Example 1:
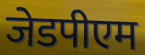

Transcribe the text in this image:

जेडपीएम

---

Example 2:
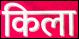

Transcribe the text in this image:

किला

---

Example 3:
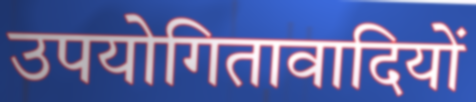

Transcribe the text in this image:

उपयोगितावादियों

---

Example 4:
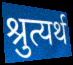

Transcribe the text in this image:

श्रुत्यर्थ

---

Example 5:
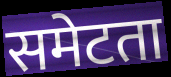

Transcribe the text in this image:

समेटता